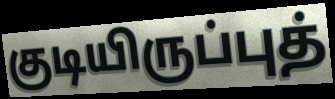
குடியிருப்புத்